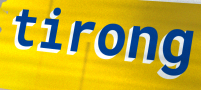
tirong